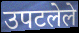
उपटलेले